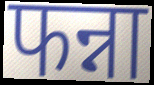
फन्ना